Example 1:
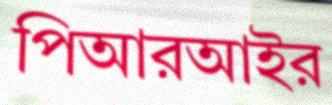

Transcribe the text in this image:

পিআরআইর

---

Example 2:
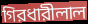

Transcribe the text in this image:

গিরধারীলাল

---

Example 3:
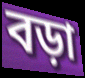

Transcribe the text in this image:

বড়া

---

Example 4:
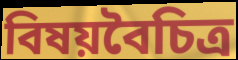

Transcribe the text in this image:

বিষয়বৈচিত্র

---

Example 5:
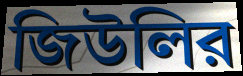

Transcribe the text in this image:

জিউলির